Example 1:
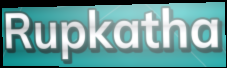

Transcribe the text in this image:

Rupkatha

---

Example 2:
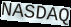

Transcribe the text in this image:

NASDAQ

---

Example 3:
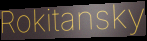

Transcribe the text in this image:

Rokitansky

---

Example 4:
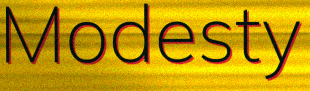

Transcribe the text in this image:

Modesty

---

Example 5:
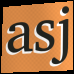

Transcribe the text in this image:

asj